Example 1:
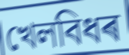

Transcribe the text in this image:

খেলবিধৰ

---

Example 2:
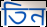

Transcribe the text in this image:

তিন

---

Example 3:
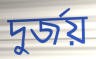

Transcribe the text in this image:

দুৰ্জয়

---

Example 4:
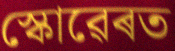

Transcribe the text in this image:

স্কোৱেৰত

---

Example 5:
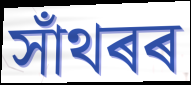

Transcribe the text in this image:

সাঁথৰৰ